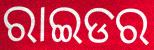
ରାଇଡର